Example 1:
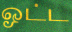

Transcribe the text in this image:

ஓட்ட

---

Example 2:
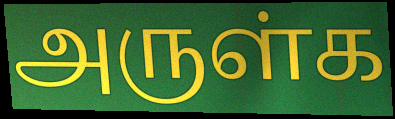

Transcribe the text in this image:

அருள்க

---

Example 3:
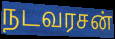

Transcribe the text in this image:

நடவரசன்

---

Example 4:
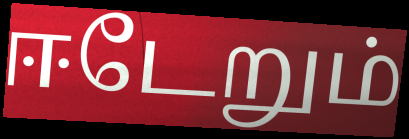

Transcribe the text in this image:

ஈடேறும்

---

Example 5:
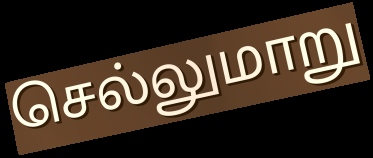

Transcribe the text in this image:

செல்லுமாறு